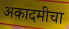
अकादमीचा